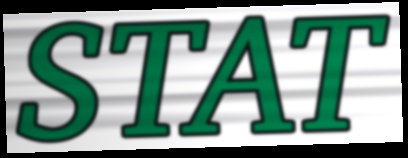
STAT